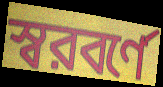
স্বরবর্ণে